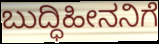
ಬುದ್ಧಿಹೀನನಿಗೆ